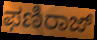
ಫಣಿರಾಜ್